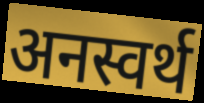
अनस्वर्थ